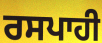
ਰਸਪਾਹੀ